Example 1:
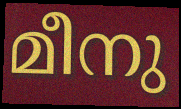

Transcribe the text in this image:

മീനു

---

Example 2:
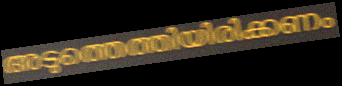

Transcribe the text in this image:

അടുത്തെത്തിയിരിക്കണം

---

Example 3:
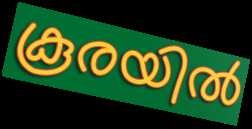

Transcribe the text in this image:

കൂരയിൽ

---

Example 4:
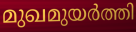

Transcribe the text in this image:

മുഖമുയർത്തി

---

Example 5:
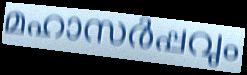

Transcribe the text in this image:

മഹാസർപ്പവും